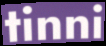
tinni